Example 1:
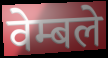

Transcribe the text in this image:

वेम्बले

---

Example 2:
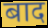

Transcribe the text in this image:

बाद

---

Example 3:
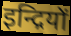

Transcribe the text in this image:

इन्द्रियों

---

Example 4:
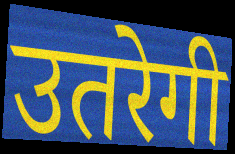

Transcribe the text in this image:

उतरेगी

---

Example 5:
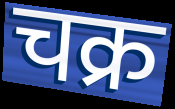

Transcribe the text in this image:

चक्र